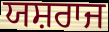
ਯਸ਼ਰਾਜ